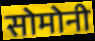
सोमोनी